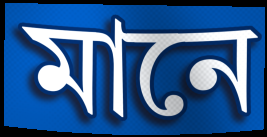
মানে